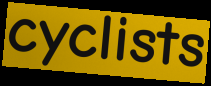
cyclists